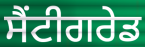
ਸੈਂਟੀਗਰੇਡ